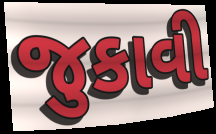
જુકાવી